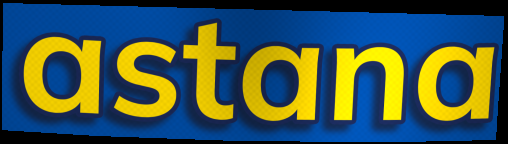
astana